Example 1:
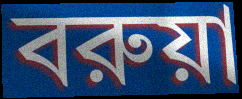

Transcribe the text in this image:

বরুয়া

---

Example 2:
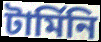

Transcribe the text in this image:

টার্মিনি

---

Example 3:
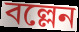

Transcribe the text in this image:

বল্লেন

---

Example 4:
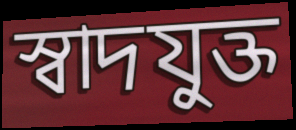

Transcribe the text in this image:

স্বাদযুক্ত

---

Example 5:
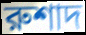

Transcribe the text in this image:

রুশাদ